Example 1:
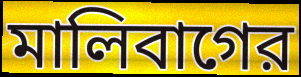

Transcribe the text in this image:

মালিবাগের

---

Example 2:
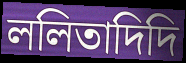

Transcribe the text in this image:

ললিতাদিদি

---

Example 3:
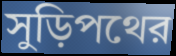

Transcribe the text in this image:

সুড়িপথের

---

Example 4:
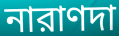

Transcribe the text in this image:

নারাণদা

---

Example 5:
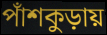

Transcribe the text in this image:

পাঁশকুড়ায়